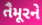
તૈમૂરને